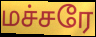
மச்சரே